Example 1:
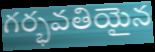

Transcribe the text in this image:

గర్భవతియైన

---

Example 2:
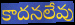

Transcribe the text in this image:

కాదనలేవు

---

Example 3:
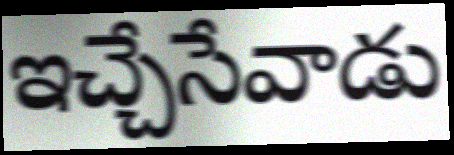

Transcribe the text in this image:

ఇచ్చేసేవాడు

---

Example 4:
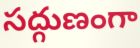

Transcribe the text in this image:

సద్గుణంగా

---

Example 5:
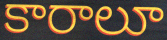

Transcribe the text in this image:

కారాలూ